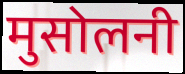
मुसोलनी